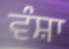
ਵੰਸ਼ਾ